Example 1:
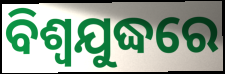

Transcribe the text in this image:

ବିଶ୍ବଯୁଦ୍ଧରେ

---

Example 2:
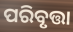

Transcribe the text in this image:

ପରିବୃତ୍ତା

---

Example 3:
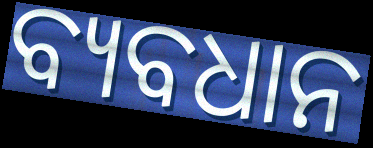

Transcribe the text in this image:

ବ୍ୟବଧାନ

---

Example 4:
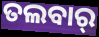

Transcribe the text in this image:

ତଲବାର୍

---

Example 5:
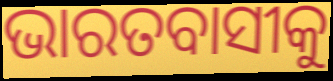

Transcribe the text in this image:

ଭାରତବାସୀକୁ